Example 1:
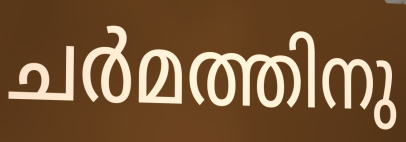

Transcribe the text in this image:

ചർമത്തിനു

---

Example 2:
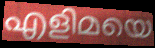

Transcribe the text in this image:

എളിമയെ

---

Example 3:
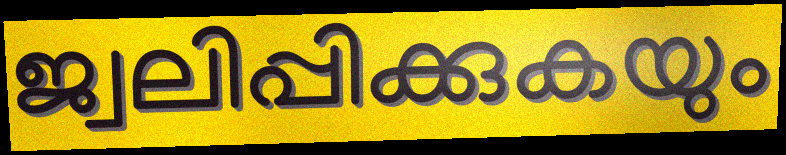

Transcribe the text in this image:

ജ്വലിപ്പിക്കുകയും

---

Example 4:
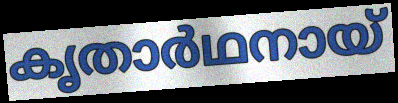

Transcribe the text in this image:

കൃതാർഥനായ്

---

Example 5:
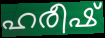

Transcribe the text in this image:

ഹരീഷ്